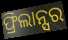
ଫ୍ରିଲାନ୍ସର